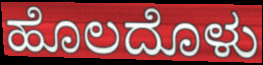
ಹೊಲದೊಳು